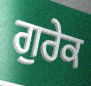
ਗੁਰੇਕ